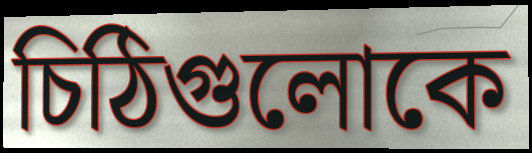
চিঠিগুলোকে